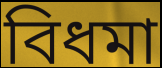
বিধমা